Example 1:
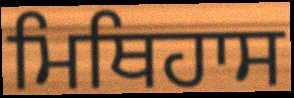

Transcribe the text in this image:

ਮਿਥਿਹਾਸ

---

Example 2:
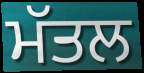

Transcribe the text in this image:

ਮੱਤਲ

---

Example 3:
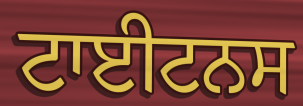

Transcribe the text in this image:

ਟਾਈਟਨਸ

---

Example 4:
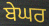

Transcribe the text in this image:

ਬੇਘਰ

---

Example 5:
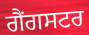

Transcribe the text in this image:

ਗੈਂਗਸਟਰ